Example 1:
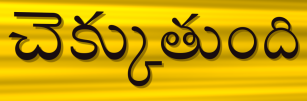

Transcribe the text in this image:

చెక్కుతుంది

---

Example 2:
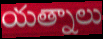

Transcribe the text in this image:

యత్నాలు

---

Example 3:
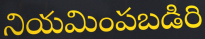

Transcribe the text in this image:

నియమింపబడిరి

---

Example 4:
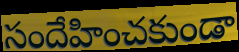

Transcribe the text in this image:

సందేహించకుండా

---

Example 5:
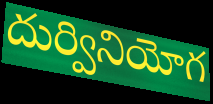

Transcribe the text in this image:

దుర్వినియోగ